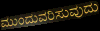
ಮುಂದುವರಿಸುವುದು